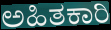
ಅಹಿತಕಾರಿ